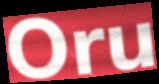
Oru